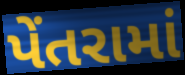
પેંતરામાં